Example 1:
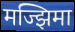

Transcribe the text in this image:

मज्झिमा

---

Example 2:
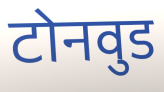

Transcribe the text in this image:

टोनवुड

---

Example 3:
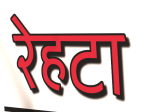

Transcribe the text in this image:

रेहटा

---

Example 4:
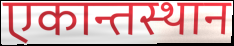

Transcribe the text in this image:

एकान्तस्थान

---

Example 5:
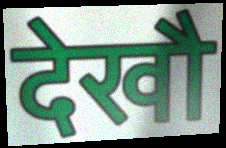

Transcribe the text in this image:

देखौ